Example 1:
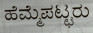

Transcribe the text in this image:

ಹೆಮ್ಮೆಪಟ್ಟರು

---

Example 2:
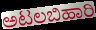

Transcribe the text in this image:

ಅಟಲಬಿಹಾರಿ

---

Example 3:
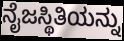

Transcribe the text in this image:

ನೈಜಸ್ಥಿತಿಯನ್ನು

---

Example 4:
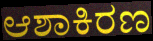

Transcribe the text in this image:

ಆಶಾಕಿರಣ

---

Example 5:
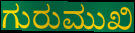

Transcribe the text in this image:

ಗುರುಮುಖಿ